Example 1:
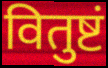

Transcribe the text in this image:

वितुष्टं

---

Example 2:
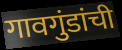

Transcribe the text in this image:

गावगुंडांची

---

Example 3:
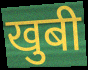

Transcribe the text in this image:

खुबी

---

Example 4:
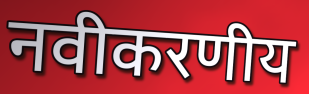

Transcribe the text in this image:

नवीकरणीय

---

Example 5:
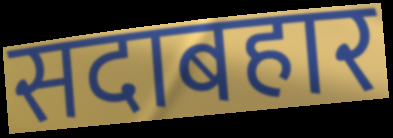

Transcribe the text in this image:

सदाबहार